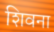
शिवना